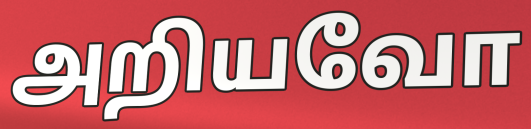
அறியவோ